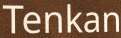
Tenkan